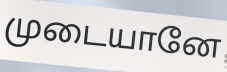
முடையானே